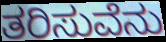
ತರಿಸುವೆನು